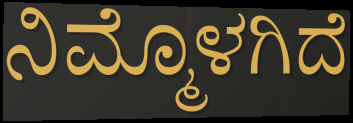
ನಿಮ್ಮೊಳಗಿದೆ